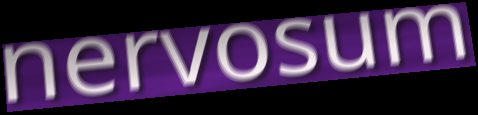
nervosum